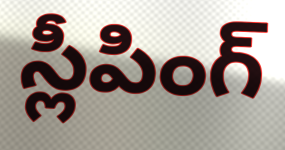
స్లీపింగ్